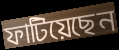
ফাটিয়েছেন